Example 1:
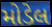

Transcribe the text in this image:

મોડેલ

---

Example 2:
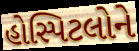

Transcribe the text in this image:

હોસ્પિટલોને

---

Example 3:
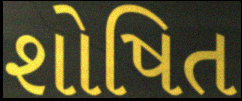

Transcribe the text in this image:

શોષિત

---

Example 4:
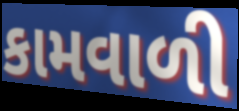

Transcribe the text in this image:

કામવાળી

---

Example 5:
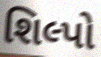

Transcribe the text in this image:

શિલ્પો